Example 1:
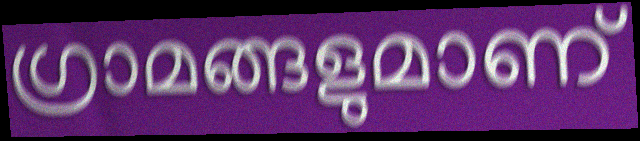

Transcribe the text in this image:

ഗ്രാമങ്ങളുമാണ്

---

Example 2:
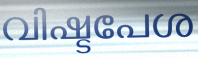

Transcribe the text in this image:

വിഷ്ടപേശ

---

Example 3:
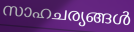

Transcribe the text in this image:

സാഹചര്യങ്ങൾ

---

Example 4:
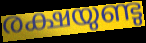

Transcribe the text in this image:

രക്ഷയുണ്ടു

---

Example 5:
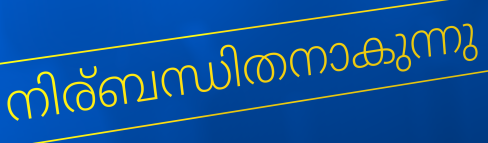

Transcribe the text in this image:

നിര്ബന്ധിതനാകുന്നു